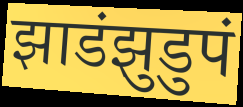
झाडंझुडुपं